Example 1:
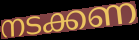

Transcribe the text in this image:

നടക്കണ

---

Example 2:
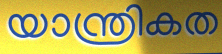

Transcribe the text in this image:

യാന്ത്രികത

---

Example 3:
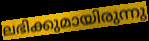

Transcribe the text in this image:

ലഭിക്കുമായിരുന്നു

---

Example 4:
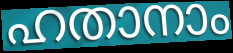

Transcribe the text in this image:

ഹതാനാം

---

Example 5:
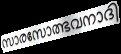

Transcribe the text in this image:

സാരസോത്ഭവനാദി